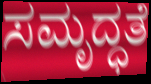
ಸಮೃದ್ಧತೆ